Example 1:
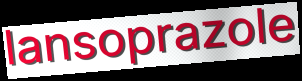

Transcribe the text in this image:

lansoprazole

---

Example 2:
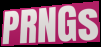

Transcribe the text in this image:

PRNGs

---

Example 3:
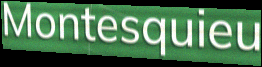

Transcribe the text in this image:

Montesquieu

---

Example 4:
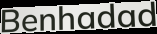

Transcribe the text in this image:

Benhadad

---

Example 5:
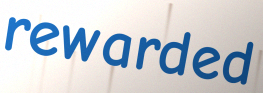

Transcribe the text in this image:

rewarded